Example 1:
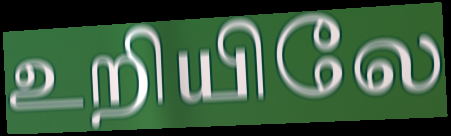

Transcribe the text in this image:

உறியிலே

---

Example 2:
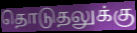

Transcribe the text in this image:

தொடுதலுக்கு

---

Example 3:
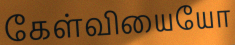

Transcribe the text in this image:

கேள்வியையோ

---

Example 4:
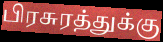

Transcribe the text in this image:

பிரசுரத்துக்கு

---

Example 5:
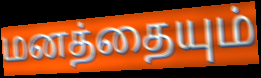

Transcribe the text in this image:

மனத்தையும்